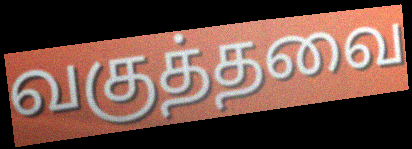
வகுத்தவை